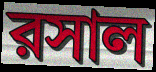
রসাল